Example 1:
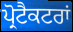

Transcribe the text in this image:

ਪ੍ਰੋਟੈਕਟਰਾਂ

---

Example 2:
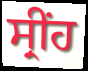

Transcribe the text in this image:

ਸ੍ਰੀਂਹ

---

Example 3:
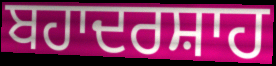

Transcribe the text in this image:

ਬਹਾਦਰਸ਼ਾਹ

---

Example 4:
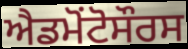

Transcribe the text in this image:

ਐਡਮੋਂਟੋਸੌਰਸ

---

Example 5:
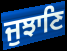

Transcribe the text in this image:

ਜੁਝਾਣਿ